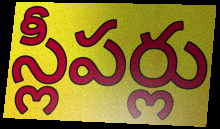
స్లీపర్లు